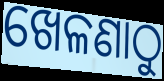
ଖେଳଣାଠୁ